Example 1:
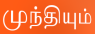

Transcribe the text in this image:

முந்தியும்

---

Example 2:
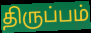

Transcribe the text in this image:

திருப்பம்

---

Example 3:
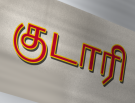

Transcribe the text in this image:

குடாரி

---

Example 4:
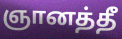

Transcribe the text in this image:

ஞானத்தீ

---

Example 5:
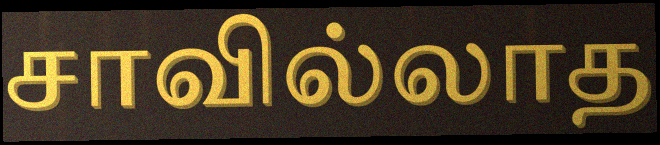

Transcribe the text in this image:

சாவில்லாத